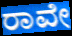
ರಾವೇ